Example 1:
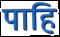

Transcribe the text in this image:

पाहि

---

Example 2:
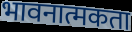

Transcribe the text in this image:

भावनात्मकता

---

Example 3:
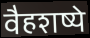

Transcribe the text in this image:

वैहशष्ये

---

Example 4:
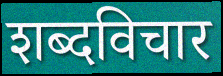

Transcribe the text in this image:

शब्दविचार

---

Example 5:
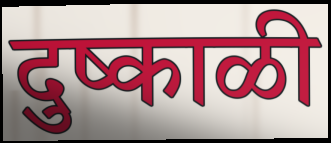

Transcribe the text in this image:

दुष्काळी